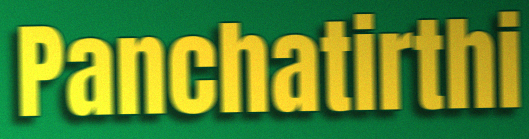
Panchatirthi